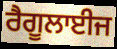
ਰੈਗੂਲਾਈਜ